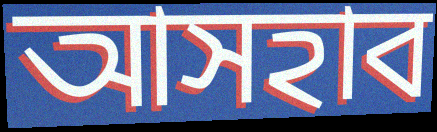
আসহাব